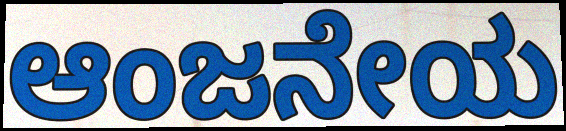
ಆಂಜನೇಯ